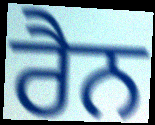
ਰੈਨ